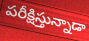
పరీక్షిస్తున్నాడా